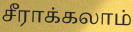
சீராக்கலாம்